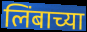
लिंबाच्या